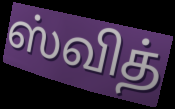
ஸ்வித்